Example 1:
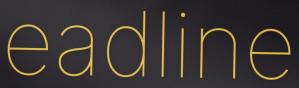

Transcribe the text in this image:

eadline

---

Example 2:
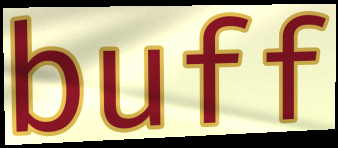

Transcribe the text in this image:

buff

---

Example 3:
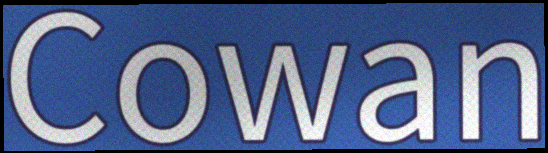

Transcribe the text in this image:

Cowan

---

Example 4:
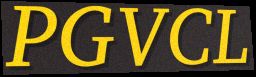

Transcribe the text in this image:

PGVCL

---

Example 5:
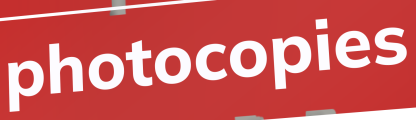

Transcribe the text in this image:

photocopies